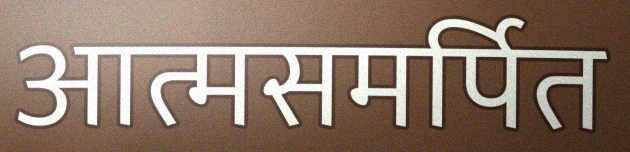
आत्मसमर्पित